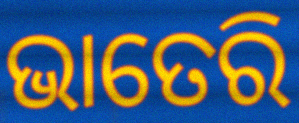
ଭାତେରି